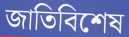
জাতিবিশেষ